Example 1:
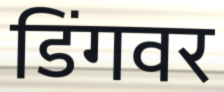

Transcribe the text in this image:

डिंगवर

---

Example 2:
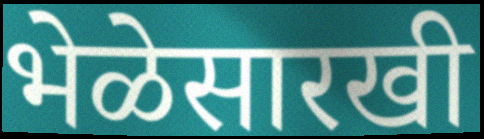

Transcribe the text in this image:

भेळेसारखी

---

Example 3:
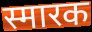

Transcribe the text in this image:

स्मारक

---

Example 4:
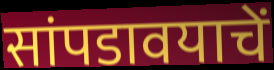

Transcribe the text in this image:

सांपडावयाचें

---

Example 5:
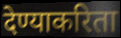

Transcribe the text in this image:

देण्याकरिता